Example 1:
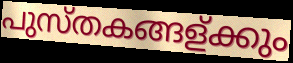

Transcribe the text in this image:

പുസ്തകങ്ങള്ക്കും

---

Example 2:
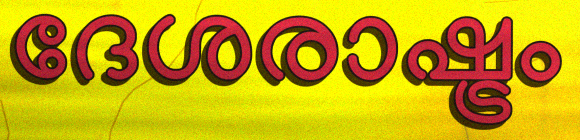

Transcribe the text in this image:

ദേശരാഷ്ട്രം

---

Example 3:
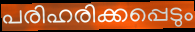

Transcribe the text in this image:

പരിഹരിക്കപ്പെടും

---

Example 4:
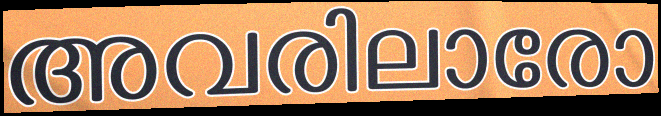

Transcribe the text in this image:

അവരിലാരോ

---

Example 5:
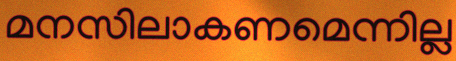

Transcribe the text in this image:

മനസിലാകണമെന്നില്ല